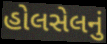
હોલસેલનું